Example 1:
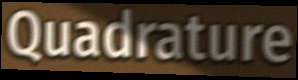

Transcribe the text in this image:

Quadrature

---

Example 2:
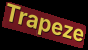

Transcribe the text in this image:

Trapeze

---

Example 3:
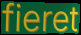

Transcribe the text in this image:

fieret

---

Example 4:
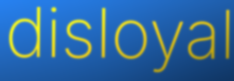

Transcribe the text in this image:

disloyal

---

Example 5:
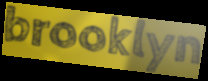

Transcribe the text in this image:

brooklyn